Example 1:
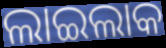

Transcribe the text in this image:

ଲାଇଲାକ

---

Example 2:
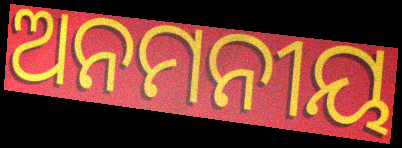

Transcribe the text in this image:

ଅନମନୀୟ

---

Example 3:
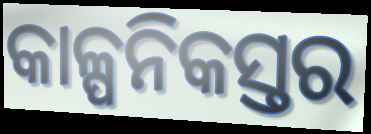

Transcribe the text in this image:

କାଳ୍ପନିକସ୍ତର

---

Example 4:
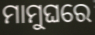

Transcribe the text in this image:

ମାମୁଘରେ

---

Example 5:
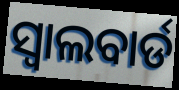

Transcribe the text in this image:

ସ୍ୱାଲବାର୍ଡ